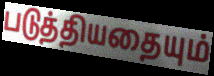
படுத்தியதையும்